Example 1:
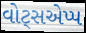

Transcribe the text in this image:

વોટ્સએપ્પ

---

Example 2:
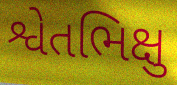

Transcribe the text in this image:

શ્વેતભિક્ષુ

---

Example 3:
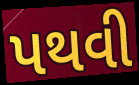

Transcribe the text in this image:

પથવી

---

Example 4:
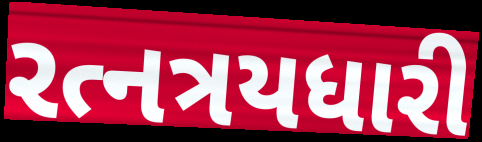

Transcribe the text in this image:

રત્નત્રયધારી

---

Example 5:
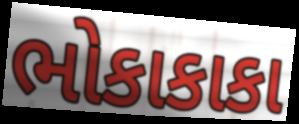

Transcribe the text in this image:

ભોકાકાકા